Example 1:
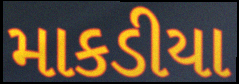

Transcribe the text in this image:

માકડીયા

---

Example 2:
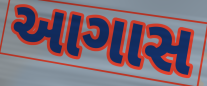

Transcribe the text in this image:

આગાસ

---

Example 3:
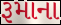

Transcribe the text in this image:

રૂમાના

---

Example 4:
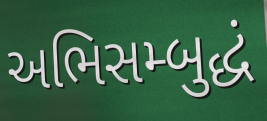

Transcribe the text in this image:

અભિસમ્બુદ્ધં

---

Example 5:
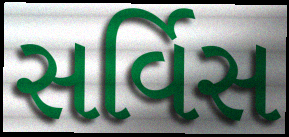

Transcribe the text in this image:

સર્વિસ